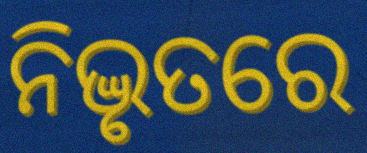
ନିଦ୍ଭୃତରେ